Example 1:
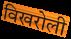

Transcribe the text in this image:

विखरोली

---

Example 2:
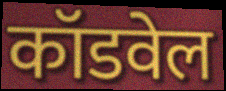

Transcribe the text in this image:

कॉडवेल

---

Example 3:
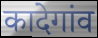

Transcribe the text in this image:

कादेगांव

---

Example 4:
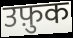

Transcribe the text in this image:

उफ़ुक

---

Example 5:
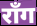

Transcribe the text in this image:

रॉंग